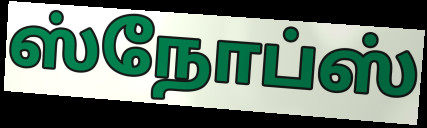
ஸ்நோப்ஸ்